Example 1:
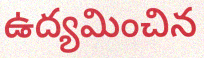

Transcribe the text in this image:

ఉద్యమించిన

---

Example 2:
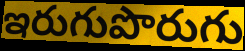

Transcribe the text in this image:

ఇరుగుపొరుగు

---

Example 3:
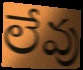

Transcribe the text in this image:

లేవు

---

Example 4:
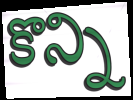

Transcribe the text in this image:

కొన్ని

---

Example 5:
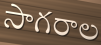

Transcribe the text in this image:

సాగరాల